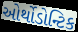
ઓર્થોડોન્ટિક